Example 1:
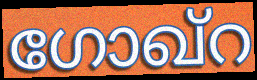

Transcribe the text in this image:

ഗോഖ്റ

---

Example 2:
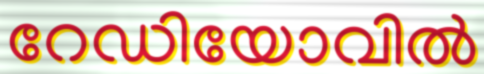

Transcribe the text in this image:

റേഡിയോവിൽ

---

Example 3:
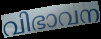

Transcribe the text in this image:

വിഭാവന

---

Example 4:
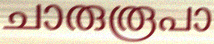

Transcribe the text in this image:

ചാരുരൂപാ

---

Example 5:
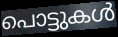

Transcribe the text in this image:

പൊട്ടുകൾ